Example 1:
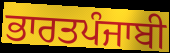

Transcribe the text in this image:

ਭਾਰਤਪੰਜਾਬੀ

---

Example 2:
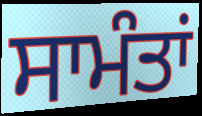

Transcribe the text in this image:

ਸਾਮੰਤਾਂ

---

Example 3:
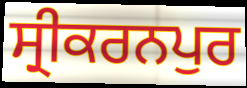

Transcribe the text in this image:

ਸ੍ਰੀਕਰਨਪੁਰ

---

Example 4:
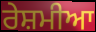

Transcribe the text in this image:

ਰੇਸ਼ਮੀਆ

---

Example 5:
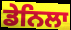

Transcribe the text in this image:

ਡੇਨਿਲਾ